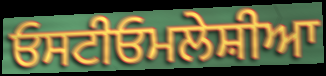
ਓਸਟੀਓਮਲੇਸ਼ੀਆ